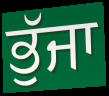
ਭੁੱਜਾ